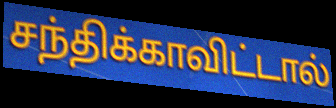
சந்திக்காவிட்டால்